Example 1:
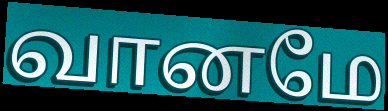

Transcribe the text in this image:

வானமே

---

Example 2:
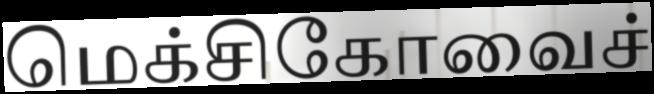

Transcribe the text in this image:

மெக்சிகோவைச்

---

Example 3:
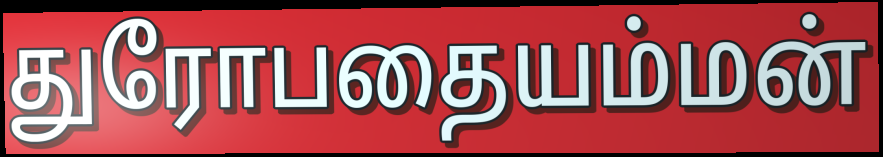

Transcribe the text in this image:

துரோபதையம்மன்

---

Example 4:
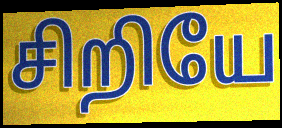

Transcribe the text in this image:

சிறியே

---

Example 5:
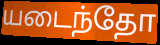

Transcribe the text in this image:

யடைந்தோ